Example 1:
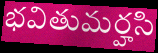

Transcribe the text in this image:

భవితుమర్హసి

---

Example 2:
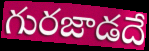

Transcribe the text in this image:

గురజాడదే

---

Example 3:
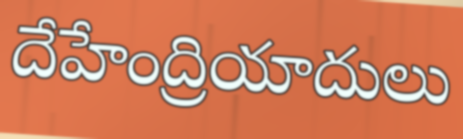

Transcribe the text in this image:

దేహేంద్రియాదులు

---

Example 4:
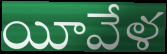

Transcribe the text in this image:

యీవేళ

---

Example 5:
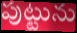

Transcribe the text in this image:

పుట్టును